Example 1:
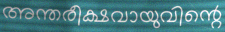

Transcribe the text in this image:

അന്തരീക്ഷവായുവിന്റെ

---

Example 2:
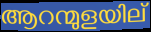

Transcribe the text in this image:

ആറന്മുളയില്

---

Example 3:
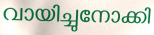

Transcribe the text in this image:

വായിച്ചുനോക്കി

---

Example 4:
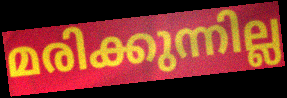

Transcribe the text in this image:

മരിക്കുന്നില്ല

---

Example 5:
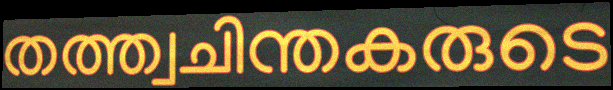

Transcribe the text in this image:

തത്ത്വചിന്തകരുടെ